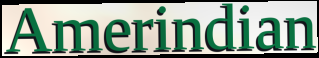
Amerindian